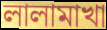
লালামাখা